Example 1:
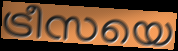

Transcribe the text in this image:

ട്രീസയെ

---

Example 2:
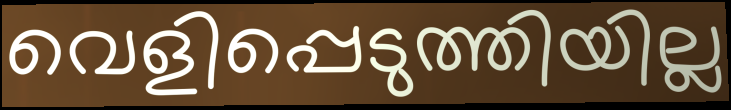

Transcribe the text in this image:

വെളിപ്പെടുത്തിയില്ല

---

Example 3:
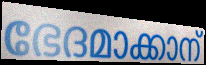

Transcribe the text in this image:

ഭേദമാക്കാന്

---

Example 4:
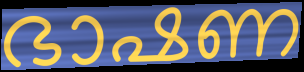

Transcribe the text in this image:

ഭാഷണ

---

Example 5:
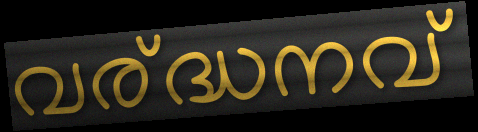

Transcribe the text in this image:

വര്ദ്ധനവ്